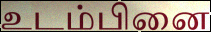
உடம்பினை